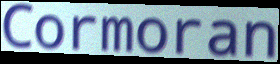
Cormoran